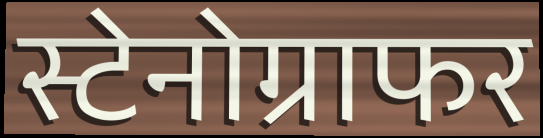
स्टेनोग्राफर